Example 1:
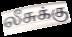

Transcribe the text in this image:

லீசுக்கு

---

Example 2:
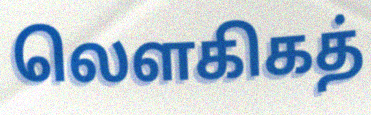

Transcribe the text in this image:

லௌகிகத்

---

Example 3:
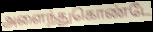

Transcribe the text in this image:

அளைந்துகொண்டே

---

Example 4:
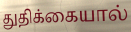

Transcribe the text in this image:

துதிக்கையால்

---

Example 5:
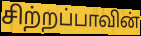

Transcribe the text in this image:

சிற்றப்பாவின்